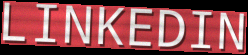
LINKEDIN